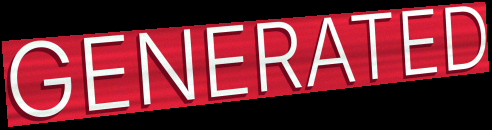
GENERATED